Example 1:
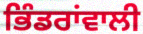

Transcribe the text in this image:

ਭਿੰਡਰਾਂਵਾਲੀ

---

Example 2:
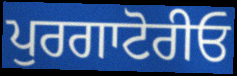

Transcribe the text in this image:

ਪੁਰਗਾਟੋਰੀਓ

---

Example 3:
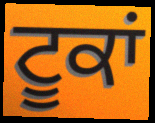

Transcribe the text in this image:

ਟੂਕਾਂ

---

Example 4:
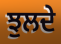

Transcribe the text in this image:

ਝੁਲਦੇ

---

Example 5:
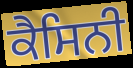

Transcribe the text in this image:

ਕੈਸਿਨੀ